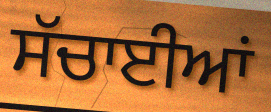
ਸੱਚਾਈਆਂ